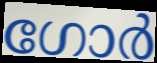
ഗോർ